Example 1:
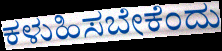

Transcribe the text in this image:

ಕಳುಹಿಸಬೇಕೆಂದು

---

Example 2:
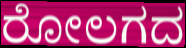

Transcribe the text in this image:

ರೋಲಗದ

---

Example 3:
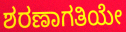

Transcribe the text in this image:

ಶರಣಾಗತಿಯೇ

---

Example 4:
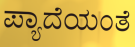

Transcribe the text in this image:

ಪ್ಯಾದೆಯಂತೆ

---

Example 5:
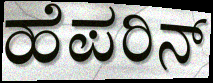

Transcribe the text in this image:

ಹೆಪರಿನ್